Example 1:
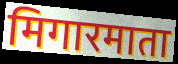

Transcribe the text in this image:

मिगारमाता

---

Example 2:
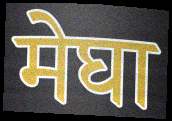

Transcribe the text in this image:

मेघा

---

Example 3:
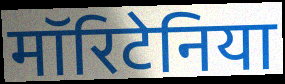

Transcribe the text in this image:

मॉरिटेनिया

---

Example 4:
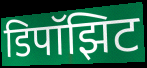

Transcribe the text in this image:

डिपॉझिट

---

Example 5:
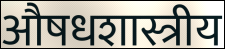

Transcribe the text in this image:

औषधशास्त्रीय